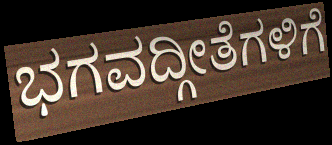
ಭಗವದ್ಗೀತೆಗಳಿಗೆ